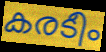
കരടീം